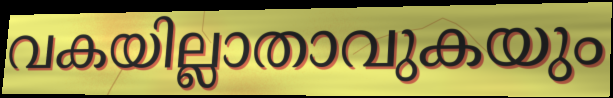
വകയില്ലാതാവുകയും